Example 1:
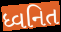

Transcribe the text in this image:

ધ્વનિત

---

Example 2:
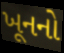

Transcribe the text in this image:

ખૂનનો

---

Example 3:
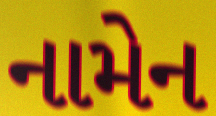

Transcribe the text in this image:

નામેન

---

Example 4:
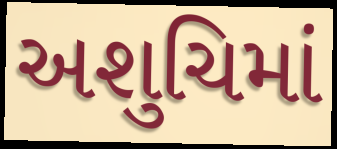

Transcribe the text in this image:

અશુચિમાં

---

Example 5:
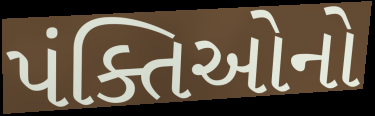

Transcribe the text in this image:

પંક્તિઓનો